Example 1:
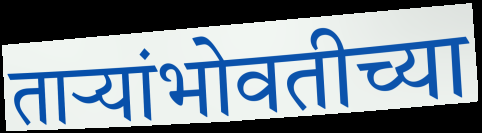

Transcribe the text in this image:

ताऱ्यांभोवतीच्या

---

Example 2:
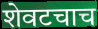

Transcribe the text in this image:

शेवटचाच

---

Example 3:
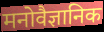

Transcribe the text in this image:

मनोवैज्ञानिक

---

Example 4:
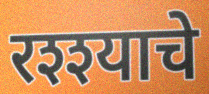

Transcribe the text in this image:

रश्श्याचे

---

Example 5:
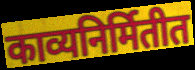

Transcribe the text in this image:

काव्यनिर्मितीत